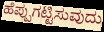
ಹೆಪ್ಪುಗಟ್ಟಿಸುವುದು